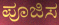
ಪೂಜಿಸ